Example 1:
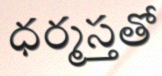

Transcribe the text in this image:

ధర్మస్తతో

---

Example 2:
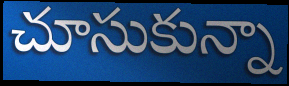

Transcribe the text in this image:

చూసుకున్నా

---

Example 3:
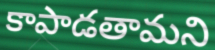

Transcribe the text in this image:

కాపాడతామని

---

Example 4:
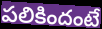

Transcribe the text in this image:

పలికిందంటే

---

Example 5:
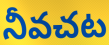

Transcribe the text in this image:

నీవచట